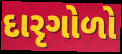
દારૃગોળો